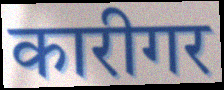
कारीगर